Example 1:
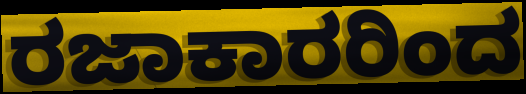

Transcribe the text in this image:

ರಜಾಕಾರರಿಂದ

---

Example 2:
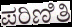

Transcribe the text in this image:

ಪರಿಣಿತಿ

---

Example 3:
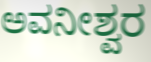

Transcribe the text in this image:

ಅವನೀಶ್ವರ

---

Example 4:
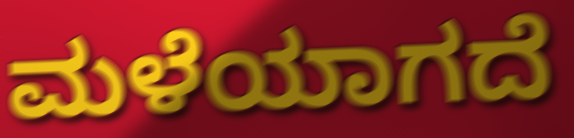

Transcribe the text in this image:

ಮಳೆಯಾಗದೆ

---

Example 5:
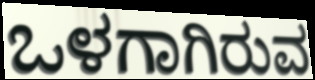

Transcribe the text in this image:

ಒಳಗಾಗಿರುವ